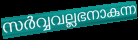
സർവ്വവല്ലഭനാകുന്ന